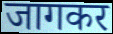
जागकर